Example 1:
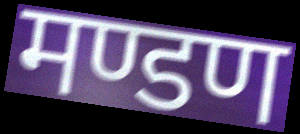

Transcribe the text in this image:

मण्डण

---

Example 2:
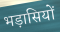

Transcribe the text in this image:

भड़ासियों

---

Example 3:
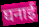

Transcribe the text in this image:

घनाई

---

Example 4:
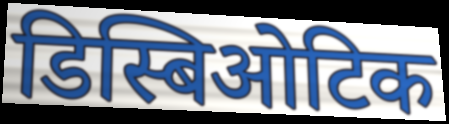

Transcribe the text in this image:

डिस्बिओटिक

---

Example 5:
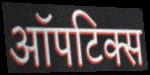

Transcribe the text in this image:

ऑपटिक्स